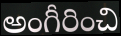
అంగీరించి